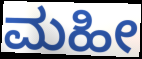
ಮಹೀ